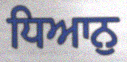
ਧਿਆਨੁ